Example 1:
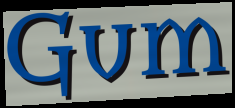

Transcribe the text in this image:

Gum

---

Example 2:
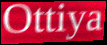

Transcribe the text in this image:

Ottiya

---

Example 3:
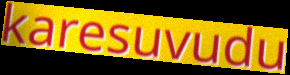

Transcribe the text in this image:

karesuvudu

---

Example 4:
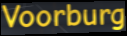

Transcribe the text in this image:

Voorburg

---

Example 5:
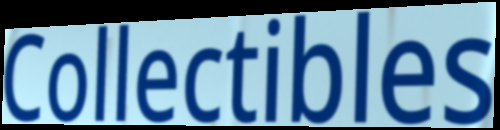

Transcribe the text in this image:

Collectibles